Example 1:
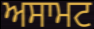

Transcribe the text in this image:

ਅਸਾਮਟ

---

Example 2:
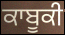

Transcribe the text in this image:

ਕਾਬੂਕੀ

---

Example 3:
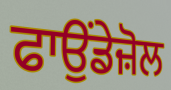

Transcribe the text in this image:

ਫਾਉਂਡੇਜ਼ੋਲ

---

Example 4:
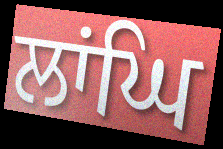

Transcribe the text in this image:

ਲਾਂਘਿ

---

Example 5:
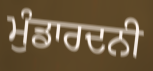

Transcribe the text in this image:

ਮੁੰਡਾਰਦਨੀ